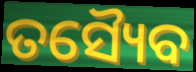
ତସ୍ୟୈବ